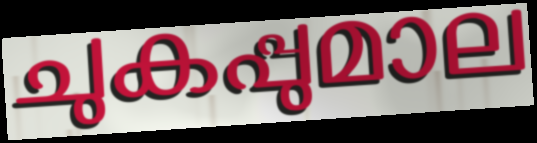
ചുകപ്പുമാല